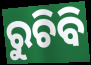
ରୁଚିବି